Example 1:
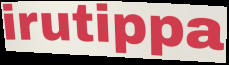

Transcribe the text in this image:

irutippa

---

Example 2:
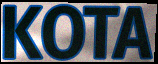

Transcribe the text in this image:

KOTA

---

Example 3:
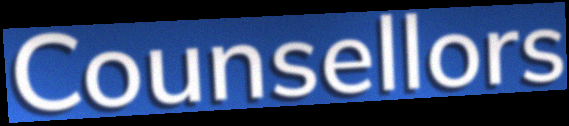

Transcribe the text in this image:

Counsellors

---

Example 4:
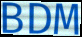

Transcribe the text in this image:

BDM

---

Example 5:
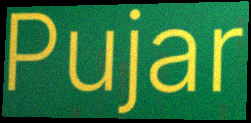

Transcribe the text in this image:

Pujar